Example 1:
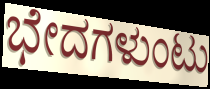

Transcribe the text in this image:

ಭೇದಗಳುಂಟು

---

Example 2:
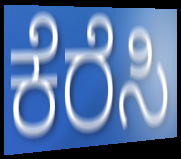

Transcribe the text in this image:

ಕೆರೆಸಿ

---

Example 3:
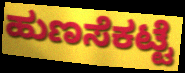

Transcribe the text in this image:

ಹುಣಸೆಕಟ್ಟೆ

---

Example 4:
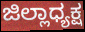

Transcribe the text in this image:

ಜಿಲ್ಲಾಧ್ಯಕ್ಷ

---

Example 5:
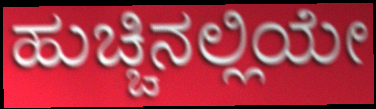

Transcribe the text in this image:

ಹುಚ್ಚಿನಲ್ಲಿಯೇ